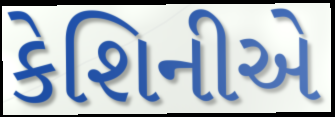
કેશિનીએ